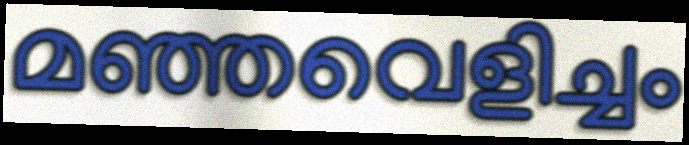
മഞ്ഞവെളിച്ചം